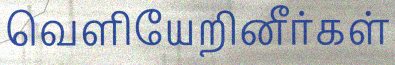
வெளியேறினீர்கள்